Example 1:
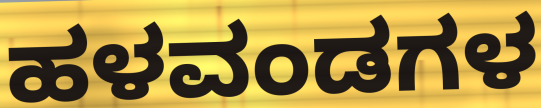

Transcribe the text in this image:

ಹಳವಂಡಗಳ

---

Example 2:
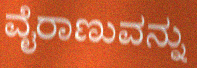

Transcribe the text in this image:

ವೈರಾಣುವನ್ನು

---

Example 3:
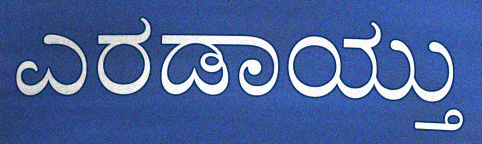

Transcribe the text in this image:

ಎರಡಾಯ್ತು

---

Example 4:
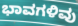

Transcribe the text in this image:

ಭಾವಗಳಿವು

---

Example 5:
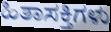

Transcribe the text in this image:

ಹಿತಾಸಕ್ತಿಗಳು